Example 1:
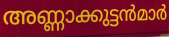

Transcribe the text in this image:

അണ്ണാക്കുട്ടൻമാർ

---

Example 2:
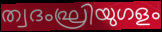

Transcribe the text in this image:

ത്വദംഘ്രിയുഗളം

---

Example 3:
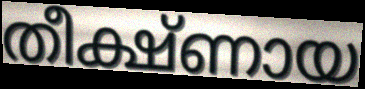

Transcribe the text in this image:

തീക്ഷ്ണായ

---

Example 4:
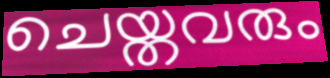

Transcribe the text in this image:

ചെയ്തവരും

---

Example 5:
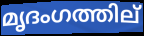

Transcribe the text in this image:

മൃദംഗത്തില്